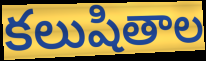
కలుషితాల